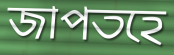
জাপতহে